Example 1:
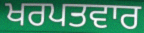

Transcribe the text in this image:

ਖਰਪਤਵਾਰ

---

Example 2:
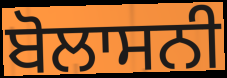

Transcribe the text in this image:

ਬੋਲਾਸਨੀ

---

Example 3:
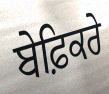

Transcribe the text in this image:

ਬੇਫ਼ਿਕਰੇ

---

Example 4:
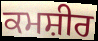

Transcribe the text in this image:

ਕਮਸ਼ੀਰ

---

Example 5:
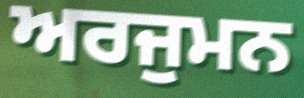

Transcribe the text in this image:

ਅਰਜੁਮਨ